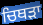
ਚਿਥੜਾ